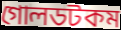
গোলডটকম